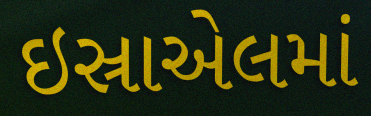
ઇસ્રાએલમાં